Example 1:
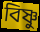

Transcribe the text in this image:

বিষ্ণু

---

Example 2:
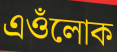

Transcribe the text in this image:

এওঁলোক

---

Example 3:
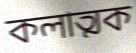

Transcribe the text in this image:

কলাত্মক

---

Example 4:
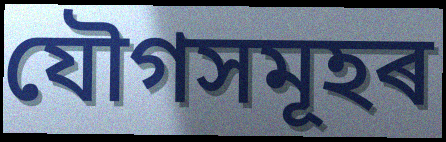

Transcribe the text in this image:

যৌগসমূহৰ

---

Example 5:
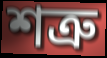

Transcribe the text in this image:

শত্ৰু